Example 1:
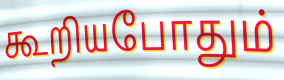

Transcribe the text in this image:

கூறியபோதும்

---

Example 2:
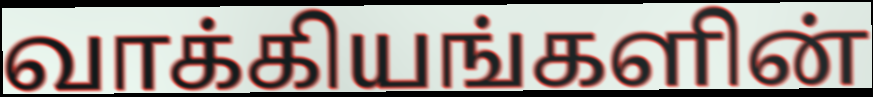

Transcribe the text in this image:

வாக்கியங்களின்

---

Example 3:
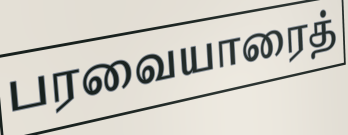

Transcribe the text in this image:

பரவையாரைத்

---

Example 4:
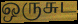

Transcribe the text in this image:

ஒருசுட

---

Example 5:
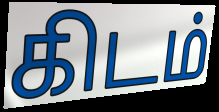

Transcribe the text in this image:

கிடம்